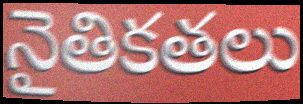
నైతికతలు